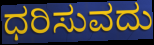
ಧರಿಸುವದು